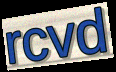
rcvd